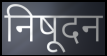
निषूदन